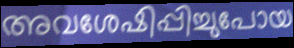
അവശേഷിപ്പിച്ചുപോയ